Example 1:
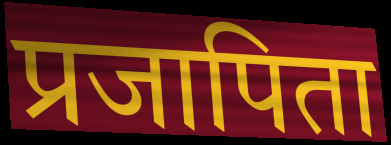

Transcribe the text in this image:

प्रजापिता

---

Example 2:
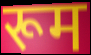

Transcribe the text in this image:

रूम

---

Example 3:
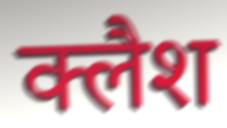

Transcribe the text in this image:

क्लैश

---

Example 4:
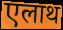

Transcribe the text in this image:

एलाथ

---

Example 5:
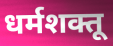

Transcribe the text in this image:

धर्मशक्तू